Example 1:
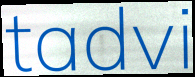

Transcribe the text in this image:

tadvi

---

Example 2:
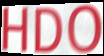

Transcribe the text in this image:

HDO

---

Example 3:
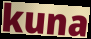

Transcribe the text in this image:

kuna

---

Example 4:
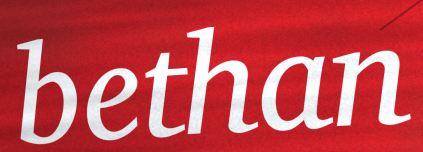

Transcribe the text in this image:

bethan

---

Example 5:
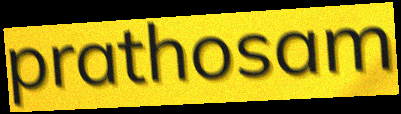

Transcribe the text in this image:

prathosam